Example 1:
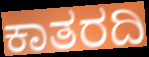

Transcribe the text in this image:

ಕಾತರದಿ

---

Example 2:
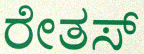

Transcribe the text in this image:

ರೇತಸ್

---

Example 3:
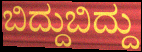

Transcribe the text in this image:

ಬಿದ್ದುಬಿದ್ದು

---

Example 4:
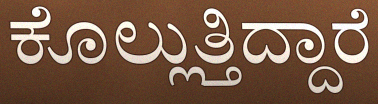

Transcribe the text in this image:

ಕೊಲ್ಲುತ್ತಿದ್ದಾರೆ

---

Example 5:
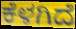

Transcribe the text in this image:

ಕೆಳಗಿದೆ